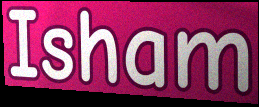
Isham